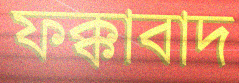
ফক্কাবাদ